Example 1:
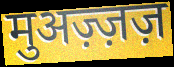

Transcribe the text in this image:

मुअज़्ज़ज़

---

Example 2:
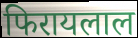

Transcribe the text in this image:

फिरायलाल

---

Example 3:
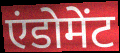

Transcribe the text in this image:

एंडोमेंट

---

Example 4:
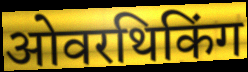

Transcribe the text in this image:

ओवरथिकिंग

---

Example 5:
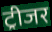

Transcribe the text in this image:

ट्रीजर